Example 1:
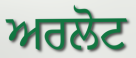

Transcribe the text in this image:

ਅਰਲੋਟ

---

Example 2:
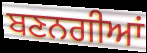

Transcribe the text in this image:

ਬਣਨਗੀਆਂ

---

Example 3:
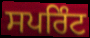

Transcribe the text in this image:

ਸਪਰਿੰਟ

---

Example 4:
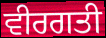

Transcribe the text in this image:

ਵੀਰਗਤੀ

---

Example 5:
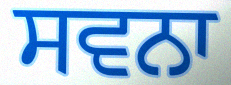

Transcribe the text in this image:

ਸਵਨਾ